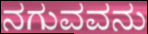
ನಗುವವನು